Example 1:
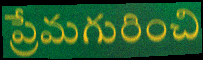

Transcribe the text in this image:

ప్రేమగురించి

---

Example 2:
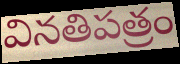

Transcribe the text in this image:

వినతిపత్రం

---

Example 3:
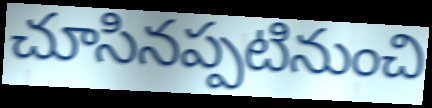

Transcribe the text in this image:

చూసినప్పటినుంచి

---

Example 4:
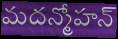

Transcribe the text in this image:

మదన్మోహన్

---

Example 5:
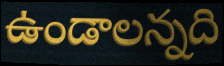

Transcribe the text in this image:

ఉండాలన్నది